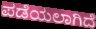
ಪಡೆಯಲಾಗಿದೆ